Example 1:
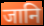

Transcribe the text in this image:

जानि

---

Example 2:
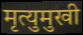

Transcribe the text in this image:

मृत्युमुखी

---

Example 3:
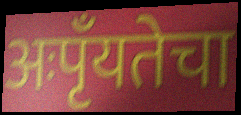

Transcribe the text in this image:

अःपृँयतेचा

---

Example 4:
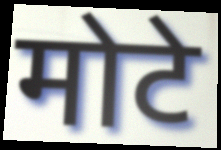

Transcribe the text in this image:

मोटे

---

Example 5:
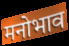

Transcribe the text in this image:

मनोभाव